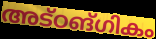
അട്ഠങ്ഗികം